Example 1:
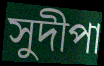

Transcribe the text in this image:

সুদীপা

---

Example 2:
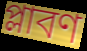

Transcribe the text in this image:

প্লাবণ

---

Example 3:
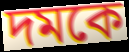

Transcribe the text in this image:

দমকে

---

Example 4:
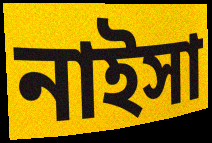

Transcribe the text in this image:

নাইসা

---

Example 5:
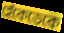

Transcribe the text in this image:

হেঁকেডেকে